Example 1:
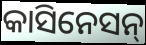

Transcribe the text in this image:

କାସିନେସନ୍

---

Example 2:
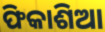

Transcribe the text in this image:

ଫିକାଶିଆ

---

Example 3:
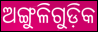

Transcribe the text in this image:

ଅଙ୍ଗୁଳିଗୁଡ଼ିକ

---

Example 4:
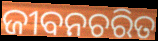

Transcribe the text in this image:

ଜୀବନଚରିତ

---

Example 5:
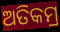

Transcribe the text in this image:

ଅତିକମ୍ର